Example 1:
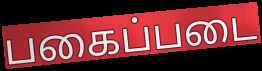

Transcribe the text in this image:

பகைப்படை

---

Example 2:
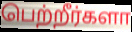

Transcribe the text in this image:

பெற்றீர்களா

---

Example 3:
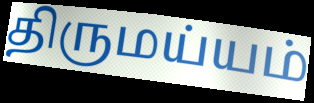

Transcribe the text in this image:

திருமய்யம்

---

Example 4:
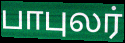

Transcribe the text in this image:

பாபுலர்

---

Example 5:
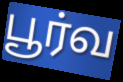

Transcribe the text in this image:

பூர்வ